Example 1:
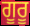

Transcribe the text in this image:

ਗੂਰੂ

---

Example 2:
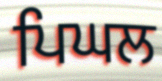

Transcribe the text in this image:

ਪਿਘਲ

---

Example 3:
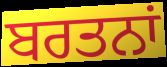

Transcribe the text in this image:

ਬਰਤਨਾਂ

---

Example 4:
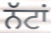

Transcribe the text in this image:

ਨੱਟਾਂ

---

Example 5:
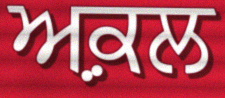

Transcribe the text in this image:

ਅ਼ਕ਼ਲ